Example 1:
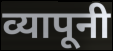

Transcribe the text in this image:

व्यापूनी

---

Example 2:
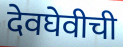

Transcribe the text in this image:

देवघेवीची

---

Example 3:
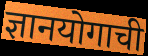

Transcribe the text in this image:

ज्ञानयोगाची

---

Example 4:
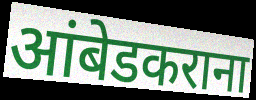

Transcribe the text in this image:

आंबेडकराना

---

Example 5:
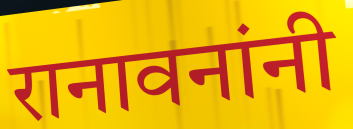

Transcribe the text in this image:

रानावनांनी